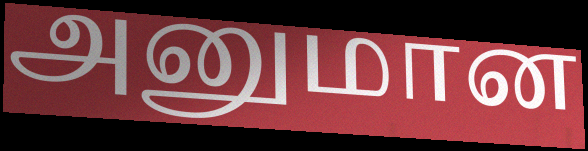
அனுமான